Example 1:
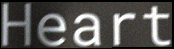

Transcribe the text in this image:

Heart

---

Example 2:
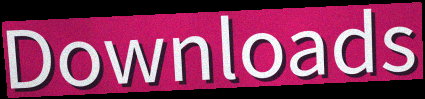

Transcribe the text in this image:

Downloads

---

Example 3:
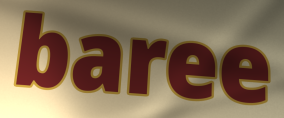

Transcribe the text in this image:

baree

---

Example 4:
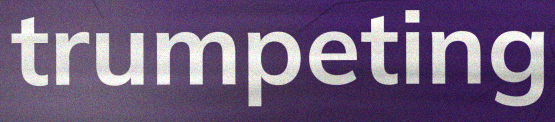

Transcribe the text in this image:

trumpeting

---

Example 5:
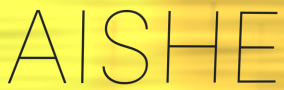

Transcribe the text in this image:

AISHE